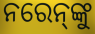
ନରେନ୍‍ଙ୍କୁ